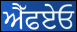
ਐੱਫਏਓ